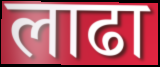
लाढा